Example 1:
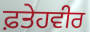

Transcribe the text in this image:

ਫ਼ਤੇਹਵੀਰ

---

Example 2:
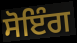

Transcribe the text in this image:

ਸੋਇੰਗ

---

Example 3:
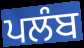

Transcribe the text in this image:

ਪਲੰਬ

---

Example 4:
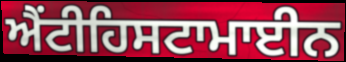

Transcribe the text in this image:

ਐਂਟੀਹਿਸਟਾਮਾਈਨ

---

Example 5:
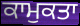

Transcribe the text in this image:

ਕਾਮੁਕਤਾ